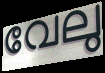
വേലു